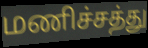
மணிச்சத்து